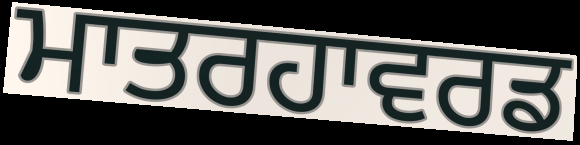
ਮਾਤਰਹਾਵਰਡ